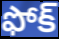
ఫోక్